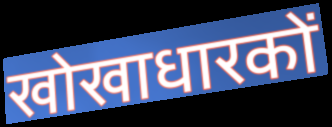
खोखाधारकों